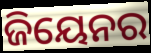
ଜିୟେନର